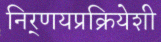
निर्णयप्रक्रियेशी